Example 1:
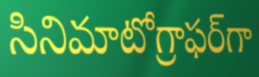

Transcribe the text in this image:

సినిమాటోగ్రాఫర్‌గా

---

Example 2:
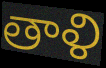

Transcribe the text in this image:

తాళి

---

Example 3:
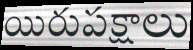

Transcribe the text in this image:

యిరుపక్షాలు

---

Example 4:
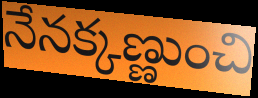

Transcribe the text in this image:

నేనక్కణ్ణుంచి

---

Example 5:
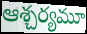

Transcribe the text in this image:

ఆశ్చర్యమూ